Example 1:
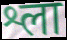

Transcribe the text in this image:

श्ला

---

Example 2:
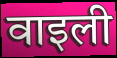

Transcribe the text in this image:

वाइली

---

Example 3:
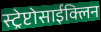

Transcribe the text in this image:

स्ट्रेप्टोसाईक्लिन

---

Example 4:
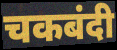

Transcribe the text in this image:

चकबंदी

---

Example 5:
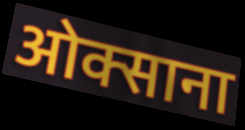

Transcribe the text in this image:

ओक्साना